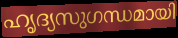
ഹൃദ്യസുഗന്ധമായി